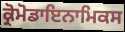
ਕ੍ਰੋਮੋਡਾਇਨਾਮਿਕਸ